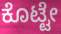
ಕೊಟ್ಟೇ